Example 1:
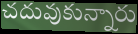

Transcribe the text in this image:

చదువుకున్నారు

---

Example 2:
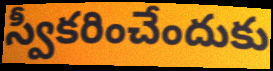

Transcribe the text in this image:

స్వీకరించేందుకు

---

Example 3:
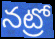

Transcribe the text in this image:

నట్రో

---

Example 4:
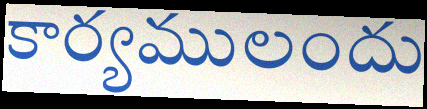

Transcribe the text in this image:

కార్యములందు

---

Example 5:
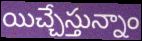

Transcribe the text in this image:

యిచ్చేస్తున్నాం